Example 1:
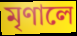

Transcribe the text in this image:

মৃণালে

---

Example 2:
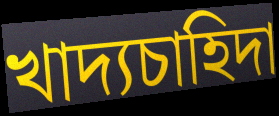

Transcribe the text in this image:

খাদ্যচাহিদা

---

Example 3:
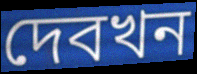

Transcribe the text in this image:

দেবখন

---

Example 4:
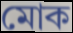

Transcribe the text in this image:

মোক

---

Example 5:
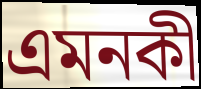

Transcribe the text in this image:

এমনকী